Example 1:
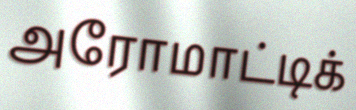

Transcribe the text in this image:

அரோமாட்டிக்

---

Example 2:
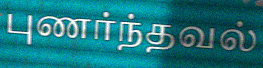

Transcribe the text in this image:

புணர்ந்தவல்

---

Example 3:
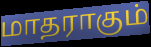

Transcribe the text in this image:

மாதராகும்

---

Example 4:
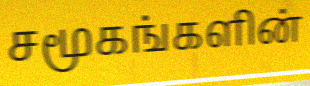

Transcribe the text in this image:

சமூகங்களின்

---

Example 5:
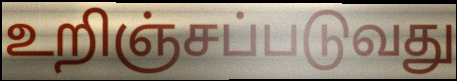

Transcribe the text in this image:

உறிஞ்சப்படுவது